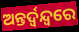
ଅନ୍ତର୍ଦ୍ୱନ୍ଦ୍ୱରେ